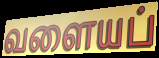
வளையப்